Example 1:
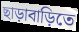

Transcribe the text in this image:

ছাড়াবাড়িতে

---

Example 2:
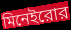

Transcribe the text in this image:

মিনেইরোর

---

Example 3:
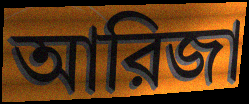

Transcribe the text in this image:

আরিজা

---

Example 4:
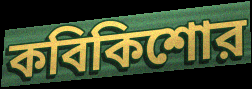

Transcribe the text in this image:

কবিকিশোর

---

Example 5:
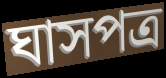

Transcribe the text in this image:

ঘাসপত্র